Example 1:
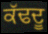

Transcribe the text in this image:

ਕੱਢਦੂ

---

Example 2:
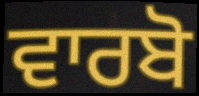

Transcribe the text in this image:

ਵਾਰਬੋ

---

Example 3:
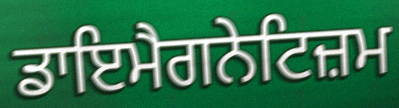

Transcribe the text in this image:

ਡਾਇਮੈਗਨੇਟਿਜ਼ਮ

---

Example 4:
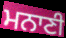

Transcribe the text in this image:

ਮਨਾਣੀ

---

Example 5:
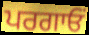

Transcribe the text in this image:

ਪਰਗਾਓਂ